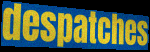
despatches